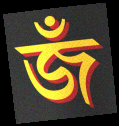
জঁ